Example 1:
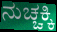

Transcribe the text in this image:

ನುಚ್ಚಕ್ಕಿ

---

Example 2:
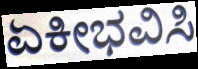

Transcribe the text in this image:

ಏಕೀಭವಿಸಿ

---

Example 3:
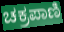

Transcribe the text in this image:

ಚಕ್ರಪಾಣಿ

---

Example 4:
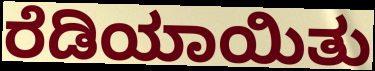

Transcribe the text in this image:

ರೆಡಿಯಾಯಿತು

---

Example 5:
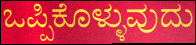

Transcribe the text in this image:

ಒಪ್ಪಿಕೊಳ್ಳುವುದು